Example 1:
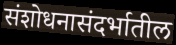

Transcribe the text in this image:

संशोधनासंदर्भातील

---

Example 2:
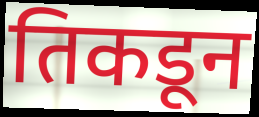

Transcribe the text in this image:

तिकडून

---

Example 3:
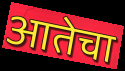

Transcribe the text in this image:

आतेचा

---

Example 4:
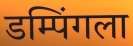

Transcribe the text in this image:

डम्पिंगला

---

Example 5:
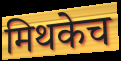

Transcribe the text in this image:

मिथकेच